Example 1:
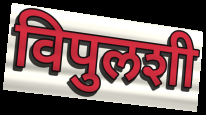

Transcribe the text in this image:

विपुलशी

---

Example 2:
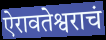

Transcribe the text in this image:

ऐरावतेश्वराचं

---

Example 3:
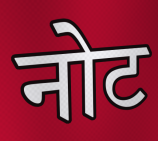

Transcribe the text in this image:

नोट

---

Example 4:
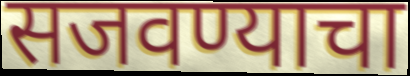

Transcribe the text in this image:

सजवण्याचा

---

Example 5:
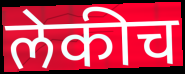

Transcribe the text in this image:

लेकीच